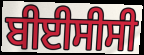
ਬੀਈਸੀਸੀ